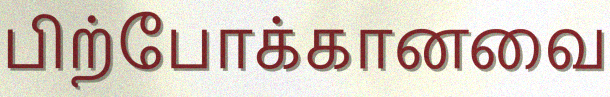
பிற்போக்கானவை